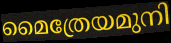
മൈത്രേയമുനി